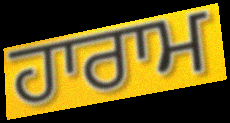
ਹਾਰਾਮ